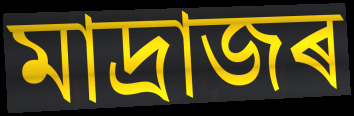
মাদ্ৰাজৰ